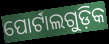
ପୋର୍ଟାଲଗୁଡ଼ିକ